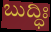
ಬುದ್ಧಿಃ